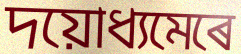
দয়োধ্যমেৰে